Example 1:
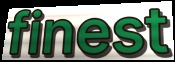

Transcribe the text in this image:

finest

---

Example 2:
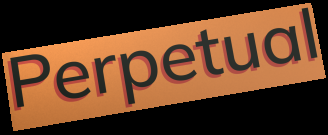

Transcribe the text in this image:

Perpetual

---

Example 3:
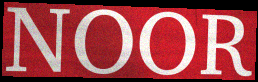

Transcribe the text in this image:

NOOR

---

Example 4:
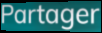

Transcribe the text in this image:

Partager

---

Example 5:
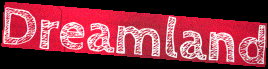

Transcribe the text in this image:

Dreamland